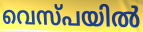
വെസ്പയിൽ